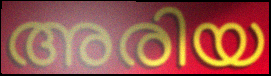
അരിയ